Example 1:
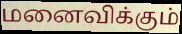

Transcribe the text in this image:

மனைவிக்கும்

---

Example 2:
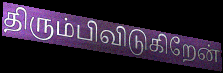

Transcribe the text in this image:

திரும்பிவிடுகிறேன்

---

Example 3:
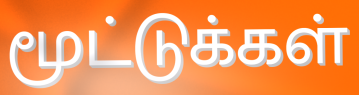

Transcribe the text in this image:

மூட்டுக்கள்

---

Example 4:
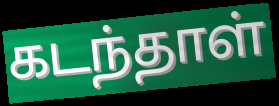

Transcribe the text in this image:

கடந்தாள்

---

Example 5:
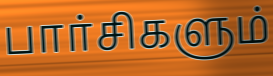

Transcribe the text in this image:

பார்சிகளும்